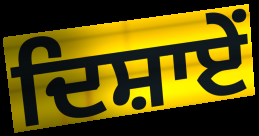
ਦਿਸ਼ਾਏਂ